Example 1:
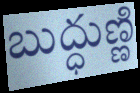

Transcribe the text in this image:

బుద్ధుణ్ణి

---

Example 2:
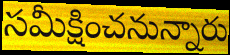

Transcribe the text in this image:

సమీక్షించనున్నారు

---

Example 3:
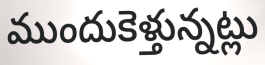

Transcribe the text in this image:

ముందుకెళ్తున్నట్లు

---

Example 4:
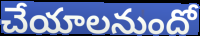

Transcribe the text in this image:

చేయాలనుందో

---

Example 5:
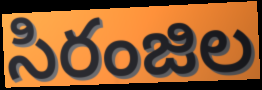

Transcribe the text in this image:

సిరంజిల